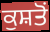
ਕੁਸ਼ਤੋਂ